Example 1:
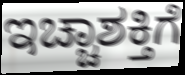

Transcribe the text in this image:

ಇಚ್ಚಾಶಕ್ತಿಗೆ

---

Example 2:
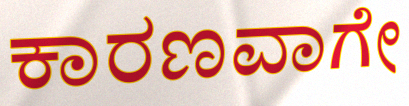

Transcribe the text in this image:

ಕಾರಣವಾಗೇ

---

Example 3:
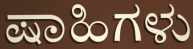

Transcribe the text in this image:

ಷಾಹಿಗಳು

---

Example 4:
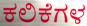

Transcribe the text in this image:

ಕಲಿಕೆಗಳ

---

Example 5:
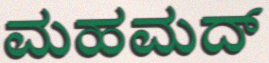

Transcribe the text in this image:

ಮಹಮದ್